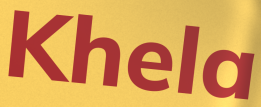
Khela